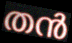
തൻ